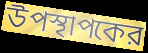
উপস্থাপকের